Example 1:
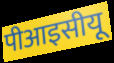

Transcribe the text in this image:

पीआइसीयू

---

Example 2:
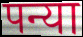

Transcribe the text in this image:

पन्या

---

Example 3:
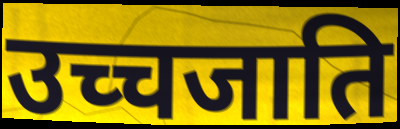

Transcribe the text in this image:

उच्चजाति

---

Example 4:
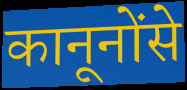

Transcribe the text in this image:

कानूनोंसे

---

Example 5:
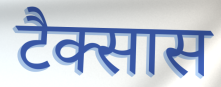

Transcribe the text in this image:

टैक्सास